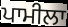
ਪਾਮੀਲਾ